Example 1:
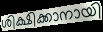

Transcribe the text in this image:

ശിക്ഷിക്കാനായി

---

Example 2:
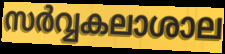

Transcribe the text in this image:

സർവ്വകലാശാല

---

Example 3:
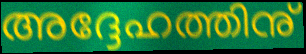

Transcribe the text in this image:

അദ്ദേഹത്തിനു്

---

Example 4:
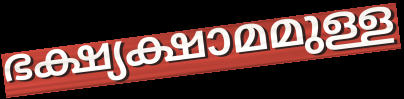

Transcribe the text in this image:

ഭക്ഷ്യക്ഷാമമുള്ള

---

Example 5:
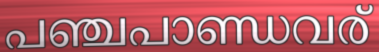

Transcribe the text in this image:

പഞ്ചപാണ്ഡവര്